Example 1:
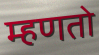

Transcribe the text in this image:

म्हणतो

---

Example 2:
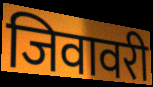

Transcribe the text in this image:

जिवावरी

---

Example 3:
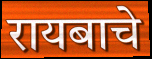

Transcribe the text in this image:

रायबाचे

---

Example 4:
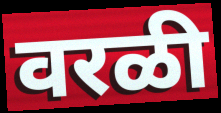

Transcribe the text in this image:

वरळी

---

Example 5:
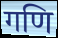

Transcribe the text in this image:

गणि